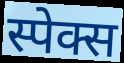
स्पेक्स